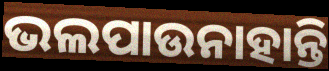
ଭଲପାଉନାହାନ୍ତି